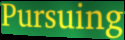
Pursuing